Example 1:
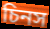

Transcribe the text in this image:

চিনস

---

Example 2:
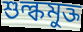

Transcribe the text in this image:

শুল্কমুক্ত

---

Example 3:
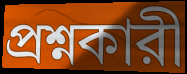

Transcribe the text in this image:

প্রশ্নকারী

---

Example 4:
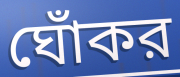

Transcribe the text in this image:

ঘোঁকর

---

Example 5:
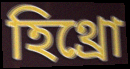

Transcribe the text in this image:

হিথ্রো